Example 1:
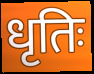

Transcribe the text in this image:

धृतिः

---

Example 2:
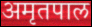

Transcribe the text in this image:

अमृतपाल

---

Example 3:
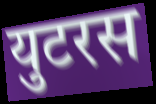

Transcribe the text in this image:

युटरस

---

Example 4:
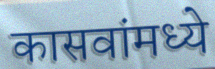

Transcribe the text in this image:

कासवांमध्ये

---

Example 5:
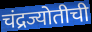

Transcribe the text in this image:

चंद्रज्योतीची